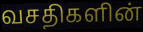
வசதிகளின்